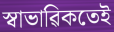
স্বাভাৱিকতেই